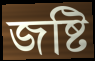
জষ্টি